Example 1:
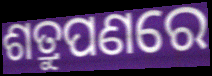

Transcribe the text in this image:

ଶତ୍ରୁପଣରେ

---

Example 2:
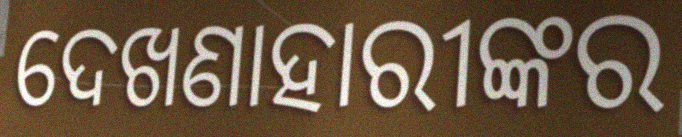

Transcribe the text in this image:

ଦେଖଣାହାରୀଙ୍କର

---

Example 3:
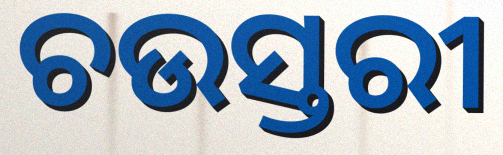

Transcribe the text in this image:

ଚଉସ୍ତରୀ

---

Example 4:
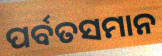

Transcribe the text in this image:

ପର୍ବତସମାନ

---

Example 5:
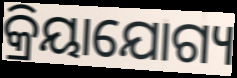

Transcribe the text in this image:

କ୍ରିୟାଯୋଗ୍ୟ